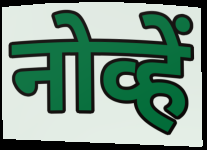
नोव्हें